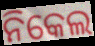
ନିକେଲ